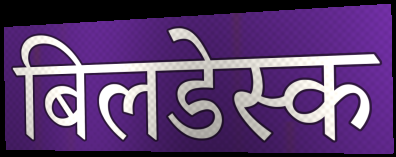
बिलडेस्क